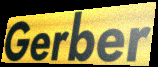
Gerber